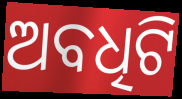
ଅବଧିଟି